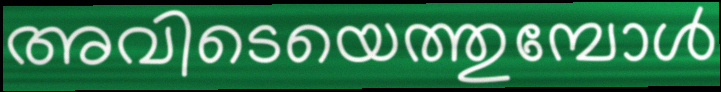
അവിടെയെത്തുമ്പോൾ